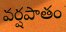
వర్షపాతం